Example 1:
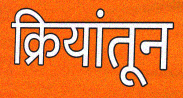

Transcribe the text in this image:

क्रियांतून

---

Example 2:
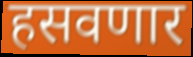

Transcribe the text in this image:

हसवणार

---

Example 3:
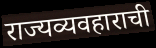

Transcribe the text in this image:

राज्यव्यवहाराची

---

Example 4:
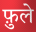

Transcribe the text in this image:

फ़ुले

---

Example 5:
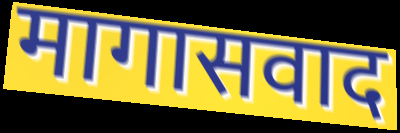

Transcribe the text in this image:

मागासवाद